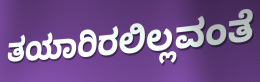
ತಯಾರಿರಲಿಲ್ಲವಂತೆ